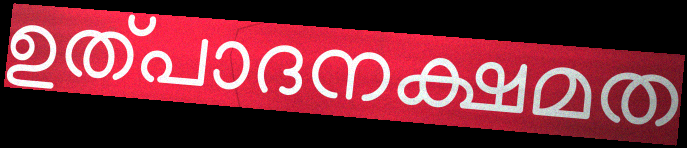
ഉത്പാദനക്ഷമത